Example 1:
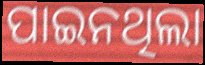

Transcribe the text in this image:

ପାଇନଥିଲା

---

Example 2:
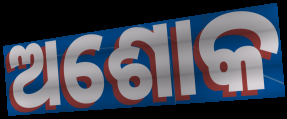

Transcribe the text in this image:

ଅଶୋକ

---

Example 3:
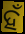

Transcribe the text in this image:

ହଁ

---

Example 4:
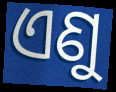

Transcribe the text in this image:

ଏଣୁ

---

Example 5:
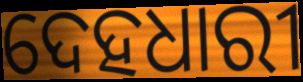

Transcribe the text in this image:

ଦେହଧାରୀ